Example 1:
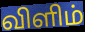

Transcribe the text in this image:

விளிம்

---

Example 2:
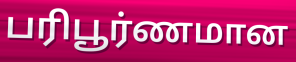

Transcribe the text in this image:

பரிபூர்ணமான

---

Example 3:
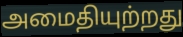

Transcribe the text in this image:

அமைதியுற்றது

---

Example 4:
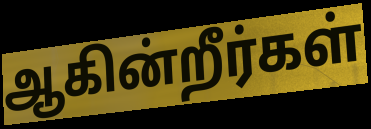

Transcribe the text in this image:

ஆகின்றீர்கள்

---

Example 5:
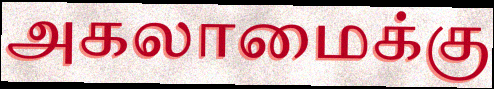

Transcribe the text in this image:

அகலாமைக்கு